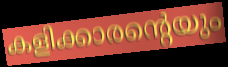
കളിക്കാരന്റെയും